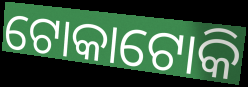
ଟୋକାଟୋକି